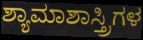
ಶ್ಯಾಮಾಶಾಸ್ತ್ರಿಗಳ